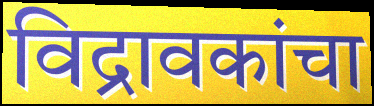
विद्रावकांचा